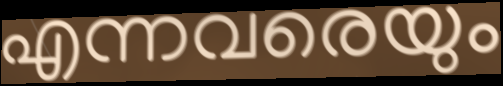
എന്നവരെയും